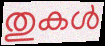
തുകൾ